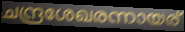
ചന്ദ്രശേഖരന്നായര്